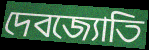
দেবজ্যোতি